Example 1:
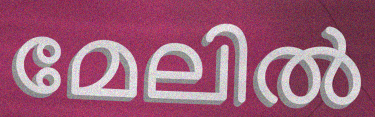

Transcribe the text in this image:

മേലിൽ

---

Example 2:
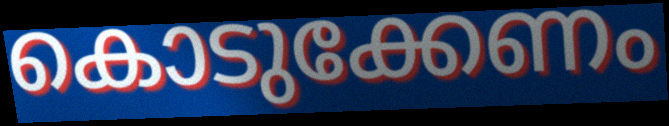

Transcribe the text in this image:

കൊടുക്കേണം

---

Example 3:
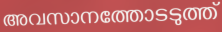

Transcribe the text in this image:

അവസാനത്തോടടുത്ത്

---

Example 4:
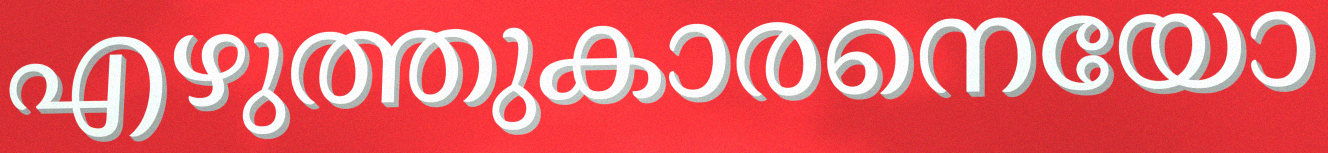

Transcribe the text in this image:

എഴുത്തുകാരനെയോ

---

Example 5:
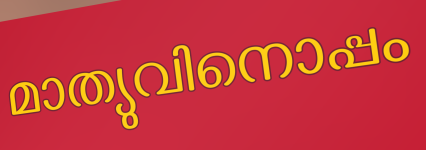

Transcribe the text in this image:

മാത്യുവിനൊപ്പം